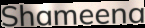
Shameena